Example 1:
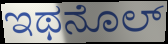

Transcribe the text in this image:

ಇಥನೊಲ್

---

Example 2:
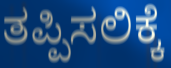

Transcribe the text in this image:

ತಪ್ಪಿಸಲಿಕ್ಕೆ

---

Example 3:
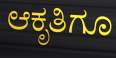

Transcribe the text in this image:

ಆಕೃತಿಗೂ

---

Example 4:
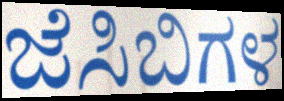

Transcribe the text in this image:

ಜೆಸಿಬಿಗಳ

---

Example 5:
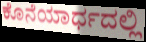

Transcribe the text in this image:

ಕೊನೆಯಾರ್ಧದಲ್ಲಿ